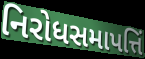
નિરોધસમાપત્તિં